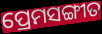
ପ୍ରେମସଙ୍ଗୀତ